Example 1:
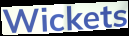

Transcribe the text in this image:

Wickets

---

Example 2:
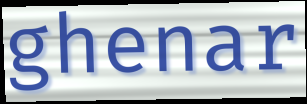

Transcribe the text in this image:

ghenar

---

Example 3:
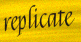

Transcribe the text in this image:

replicate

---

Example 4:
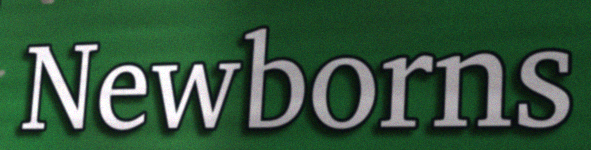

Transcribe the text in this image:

Newborns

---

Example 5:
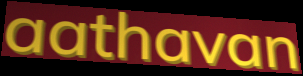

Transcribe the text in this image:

aathavan